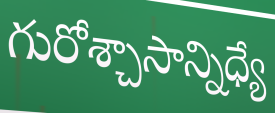
గురోశ్చాసాన్నిధ్యే